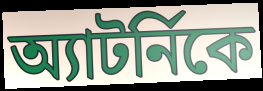
অ্যাটর্নিকে